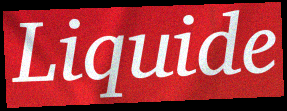
Liquide